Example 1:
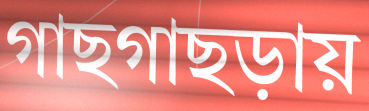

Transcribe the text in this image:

গাছগাছড়ায়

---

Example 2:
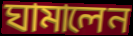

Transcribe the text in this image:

ঘামালেন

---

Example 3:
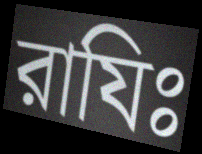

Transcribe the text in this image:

রাযিঃ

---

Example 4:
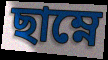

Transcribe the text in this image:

ছাম্নে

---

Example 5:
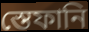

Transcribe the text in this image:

স্তেফানি